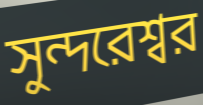
সুন্দরেশ্বর